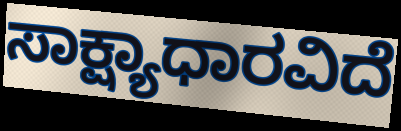
ಸಾಕ್ಷ್ಯಾಧಾರವಿದೆ